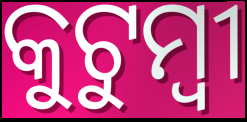
କୁଟୁମ୍ବୀ